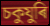
চকুযুৰি